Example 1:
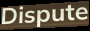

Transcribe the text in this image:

Dispute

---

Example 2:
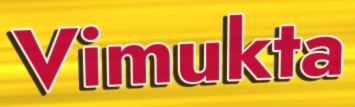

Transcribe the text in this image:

Vimukta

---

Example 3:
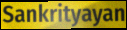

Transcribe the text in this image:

Sankrityayan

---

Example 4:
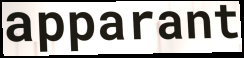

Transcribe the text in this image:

apparant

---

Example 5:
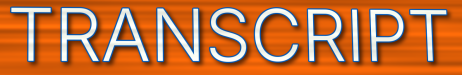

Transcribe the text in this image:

TRANSCRIPT